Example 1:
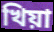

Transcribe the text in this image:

খিয়া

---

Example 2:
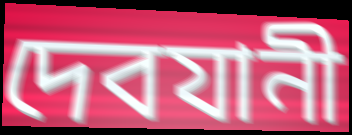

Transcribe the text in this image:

দেবযানী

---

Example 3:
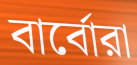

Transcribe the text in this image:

বার্বোরা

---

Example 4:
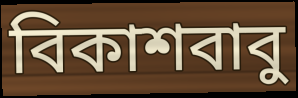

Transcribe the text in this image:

বিকাশবাবু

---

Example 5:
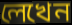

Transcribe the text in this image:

লেখেন